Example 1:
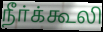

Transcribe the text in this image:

நீர்க்கூலி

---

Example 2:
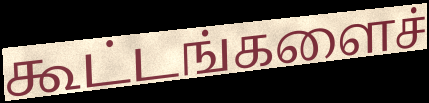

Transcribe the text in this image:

கூட்டங்களைச்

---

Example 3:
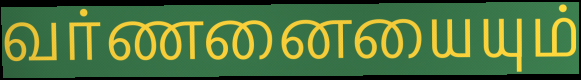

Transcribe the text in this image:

வர்ணனையையும்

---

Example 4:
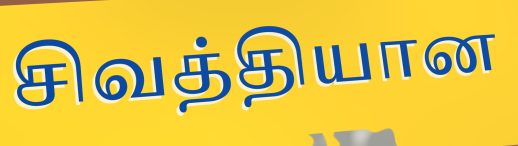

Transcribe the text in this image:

சிவத்தியான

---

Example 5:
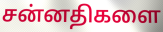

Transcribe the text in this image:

சன்னதிகளை